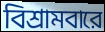
বিশ্রামবারে